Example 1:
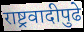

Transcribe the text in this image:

राष्ट्रवादीपुढे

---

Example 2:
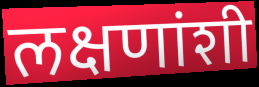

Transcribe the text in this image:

लक्षणांशी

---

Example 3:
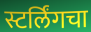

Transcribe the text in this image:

स्टर्लिंगचा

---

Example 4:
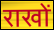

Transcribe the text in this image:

राखों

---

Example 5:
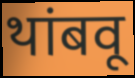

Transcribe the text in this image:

थांबवू